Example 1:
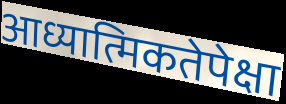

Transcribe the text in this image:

आध्यात्मिकतेपेक्षा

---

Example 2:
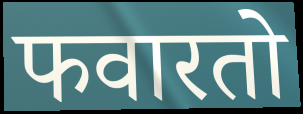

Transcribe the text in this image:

फवारतो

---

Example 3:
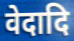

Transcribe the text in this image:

वेदादि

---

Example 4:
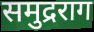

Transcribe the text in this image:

समुद्रराग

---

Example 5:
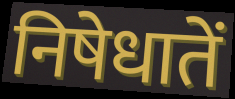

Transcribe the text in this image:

निषेधातें